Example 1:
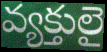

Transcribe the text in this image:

వ్యక్తులై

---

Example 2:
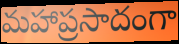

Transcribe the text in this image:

మహాప్రసాదంగా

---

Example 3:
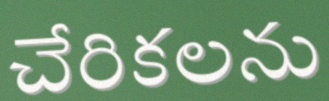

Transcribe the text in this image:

చేరికలను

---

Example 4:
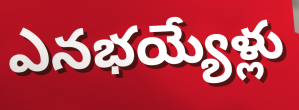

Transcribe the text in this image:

ఎనభయ్యేళ్లు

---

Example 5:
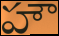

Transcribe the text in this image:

హౌ